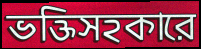
ভক্তিসহকারে